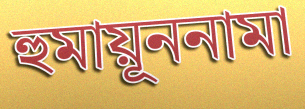
হুমায়ূননামা